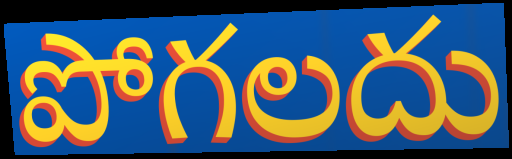
పోగలదు